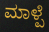
ಮಾಳ್ಪೆ